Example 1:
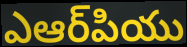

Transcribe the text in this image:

ఎఆర్‌పియు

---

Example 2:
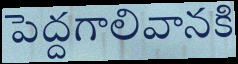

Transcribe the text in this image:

పెద్దగాలివానకి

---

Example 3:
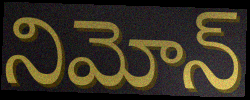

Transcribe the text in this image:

నిమోన్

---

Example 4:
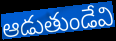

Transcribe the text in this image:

ఆడుతుండేవి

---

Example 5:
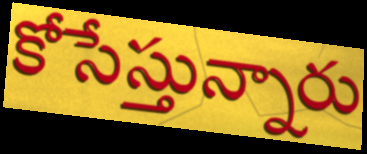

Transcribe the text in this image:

కోసేస్తున్నారు